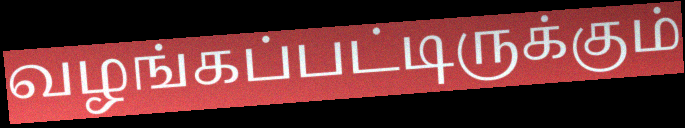
வழங்கப்பட்டிருக்கும்